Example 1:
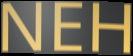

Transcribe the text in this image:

NEH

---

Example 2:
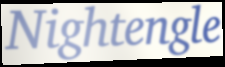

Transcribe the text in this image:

Nightengle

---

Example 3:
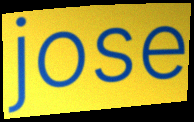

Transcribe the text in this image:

jose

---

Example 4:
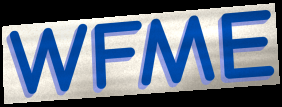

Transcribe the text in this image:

WFME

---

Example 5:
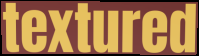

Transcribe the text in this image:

textured